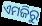
ଏମଜିରୁ